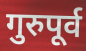
गुरुपूर्व